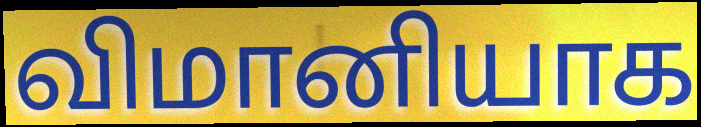
விமானியாக